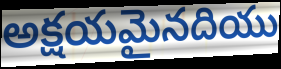
అక్షయమైనదియు